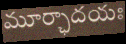
మూర్ఛాదయః